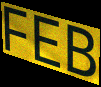
FEB